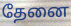
தேனை